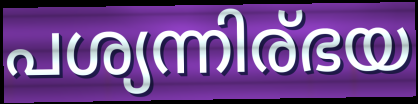
പശ്യന്നിര്ഭയ